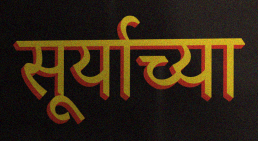
सूर्याच्या